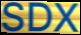
SDX